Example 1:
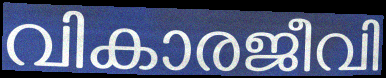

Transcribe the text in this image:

വികാരജീവി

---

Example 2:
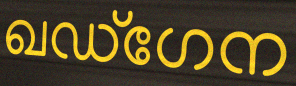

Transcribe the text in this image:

ഖഡ്ഗേന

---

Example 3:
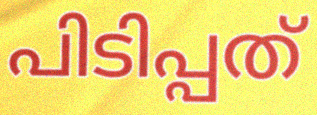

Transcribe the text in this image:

പിടിപ്പത്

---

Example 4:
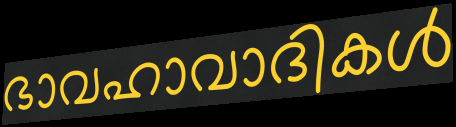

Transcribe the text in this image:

ഭാവഹാവാദികൾ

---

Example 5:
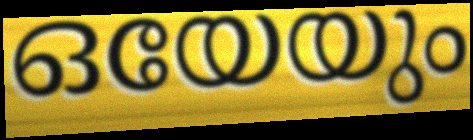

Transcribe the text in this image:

ഒയേയും